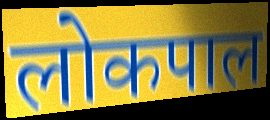
लोकपाल